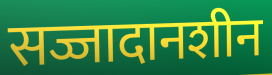
सज्जादानशीन